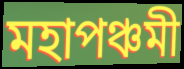
মহাপঞ্চমী